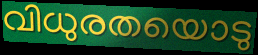
വിധുരതയൊടു